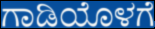
ಗಾಡಿಯೊಳಗೆ